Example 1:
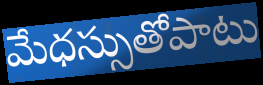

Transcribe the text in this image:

మేధస్సుతోపాటు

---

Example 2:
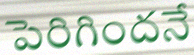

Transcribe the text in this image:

పెరిగిందనే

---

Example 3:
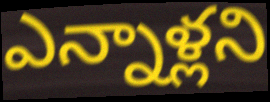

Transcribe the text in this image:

ఎన్నాళ్లని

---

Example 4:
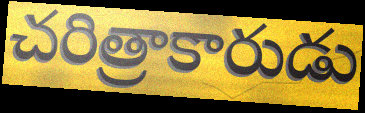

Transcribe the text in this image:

చరిత్రాకారుడు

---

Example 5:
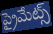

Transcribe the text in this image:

ప్రైమేట్స్